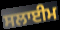
ਸਲਾਈਮ